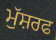
ਮੁੱਸ਼ਰਫ